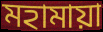
মহামায়া